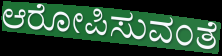
ಆರೋಪಿಸುವಂತೆ